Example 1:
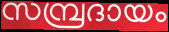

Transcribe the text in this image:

സമ്പ്രദായം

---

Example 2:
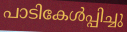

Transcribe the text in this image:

പാടികേൾപ്പിച്ചു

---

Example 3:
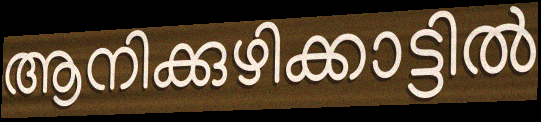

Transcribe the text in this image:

ആനിക്കുഴിക്കാട്ടിൽ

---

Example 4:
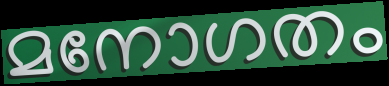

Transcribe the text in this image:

മനോഗതം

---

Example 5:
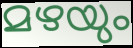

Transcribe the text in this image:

മഴയും